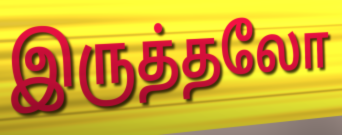
இருத்தலோ